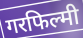
गरफिल्मी